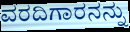
ವರದಿಗಾರನನ್ನು